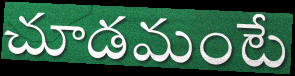
చూడమంటే